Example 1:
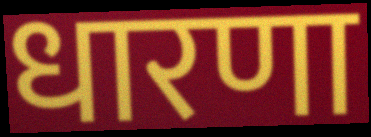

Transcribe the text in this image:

धारणा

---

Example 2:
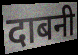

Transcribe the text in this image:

दाबनी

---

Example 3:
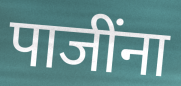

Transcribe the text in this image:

पाजींना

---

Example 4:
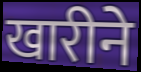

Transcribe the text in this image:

खारीने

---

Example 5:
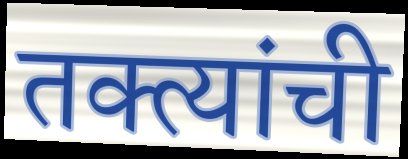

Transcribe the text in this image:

तक्त्यांची